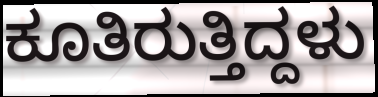
ಕೂತಿರುತ್ತಿದ್ದಳು